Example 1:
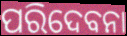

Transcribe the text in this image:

ପରିଦେବନା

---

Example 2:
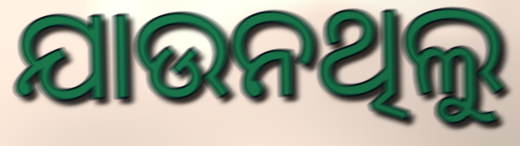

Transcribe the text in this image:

ଯାଉନଥିଲୁ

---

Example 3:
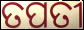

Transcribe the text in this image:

ତପତୀ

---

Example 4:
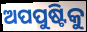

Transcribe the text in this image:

ଅପପୁଷ୍ଟିକୁ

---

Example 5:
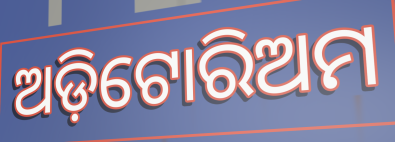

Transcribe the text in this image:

ଅଡ଼ିଟୋରିଅମ